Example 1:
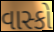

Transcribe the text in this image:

વાસ્કો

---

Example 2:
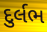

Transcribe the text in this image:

દુર્લભ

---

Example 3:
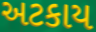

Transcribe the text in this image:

અટકાય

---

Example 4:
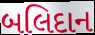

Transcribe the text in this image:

બલિદાન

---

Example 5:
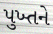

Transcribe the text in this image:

પુખ્તને